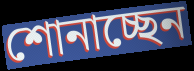
শোনাচ্ছেন